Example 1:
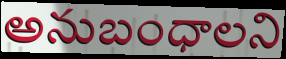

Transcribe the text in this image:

అనుబంధాలని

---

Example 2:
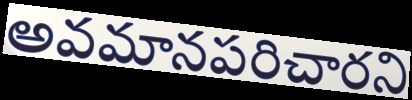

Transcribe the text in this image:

అవమానపరిచారని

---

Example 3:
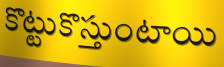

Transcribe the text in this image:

కొట్టుకొస్తుంటాయి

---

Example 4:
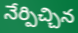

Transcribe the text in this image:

నేర్పిచ్చిన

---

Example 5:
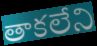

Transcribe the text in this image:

తాకలేని